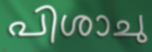
പിശാചു